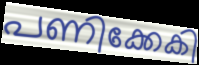
പണിക്കേകി